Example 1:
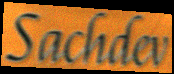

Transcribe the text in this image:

Sachdev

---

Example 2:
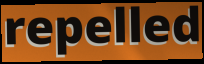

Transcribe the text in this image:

repelled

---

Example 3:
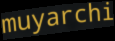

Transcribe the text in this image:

muyarchi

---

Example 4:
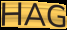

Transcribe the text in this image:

HAG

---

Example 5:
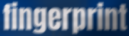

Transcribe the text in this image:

fingerprint